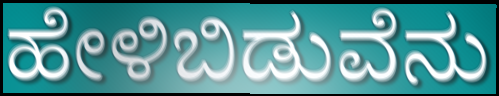
ಹೇಳಿಬಿಡುವೆನು